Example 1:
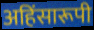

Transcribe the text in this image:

अहिंसारूपी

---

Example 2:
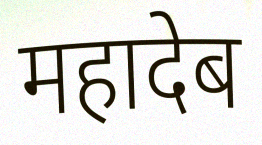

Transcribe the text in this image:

महादेब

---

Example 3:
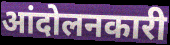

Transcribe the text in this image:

आंदोलनकारी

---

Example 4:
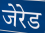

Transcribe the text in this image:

जेरेड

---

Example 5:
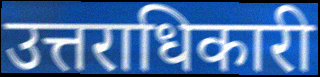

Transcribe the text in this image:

उत्तराधिकारी